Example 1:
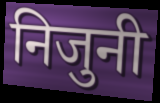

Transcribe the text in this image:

निजुनी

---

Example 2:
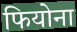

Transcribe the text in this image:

फियोना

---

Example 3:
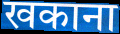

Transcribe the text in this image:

खकाना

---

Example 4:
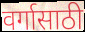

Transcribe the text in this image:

वर्गासाठी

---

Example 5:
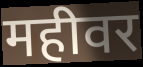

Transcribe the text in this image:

महीवर